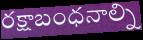
రక్షాబంధనాల్ని